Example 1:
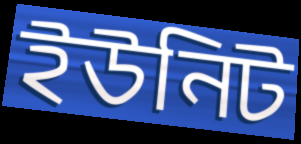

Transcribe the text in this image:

ইউনিট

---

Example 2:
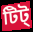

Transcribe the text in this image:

টিট্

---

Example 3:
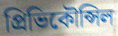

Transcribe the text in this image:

প্রিভিকৌন্সিল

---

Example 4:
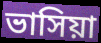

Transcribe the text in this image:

ভাসিয়া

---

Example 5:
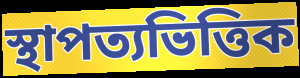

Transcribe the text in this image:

স্থাপত্যভিত্তিক